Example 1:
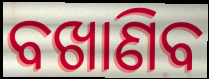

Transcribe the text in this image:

ବଖାଣିବ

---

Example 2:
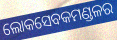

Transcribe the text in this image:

ଲୋକସେବକମଣ୍ଡଳର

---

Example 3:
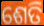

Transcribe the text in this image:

ଶେତି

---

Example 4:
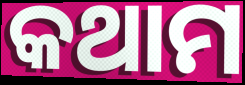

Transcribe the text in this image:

କଥାମ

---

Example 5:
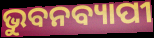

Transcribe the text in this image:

ଭୁବନବ୍ୟାପୀ